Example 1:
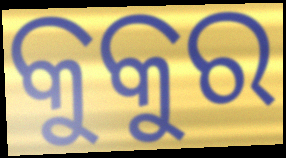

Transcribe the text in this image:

କୁକୁର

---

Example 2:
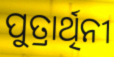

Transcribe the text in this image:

ପୁତ୍ରାର୍ଥିନୀ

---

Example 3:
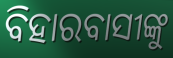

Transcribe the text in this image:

ବିହାରବାସୀଙ୍କୁ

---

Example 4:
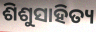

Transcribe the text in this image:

ଶିଶୁସାହିତ୍ୟ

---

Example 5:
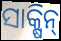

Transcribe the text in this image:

ସାକ୍ଷିନ୍